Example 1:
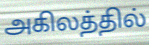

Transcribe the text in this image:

அகிலத்தில்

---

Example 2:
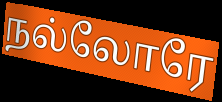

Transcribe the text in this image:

நல்லோரே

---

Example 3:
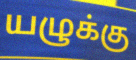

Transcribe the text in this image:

யழுக்கு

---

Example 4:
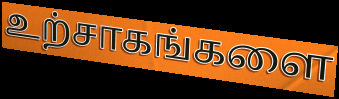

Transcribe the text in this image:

உற்சாகங்களை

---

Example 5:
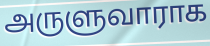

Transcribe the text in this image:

அருளுவாராக